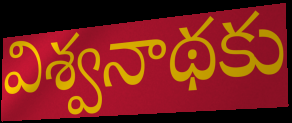
విశ్వనాథకు